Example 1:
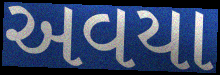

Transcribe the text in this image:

અવયા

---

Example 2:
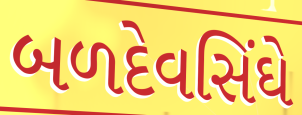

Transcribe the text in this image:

બળદેવસિંઘે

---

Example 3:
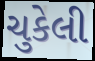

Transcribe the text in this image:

ચુકેલી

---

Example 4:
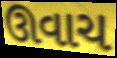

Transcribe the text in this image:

ઊવાચ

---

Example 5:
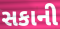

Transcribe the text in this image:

સકાની